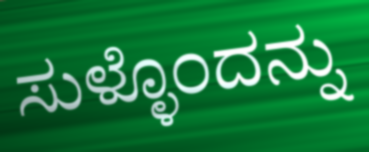
ಸುಳ್ಳೊಂದನ್ನು